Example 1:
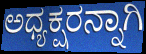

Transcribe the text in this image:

ಅಧ್ಯಕ್ಷರನ್ನಾಗಿ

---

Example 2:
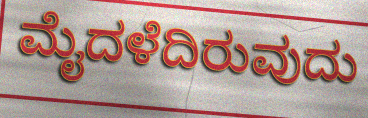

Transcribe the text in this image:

ಮೈದಳೆದಿರುವುದು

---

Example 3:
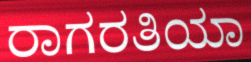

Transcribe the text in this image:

ರಾಗರತಿಯಾ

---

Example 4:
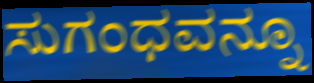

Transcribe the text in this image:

ಸುಗಂಧವನ್ನೂ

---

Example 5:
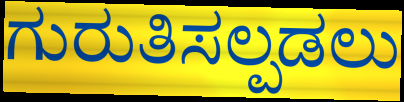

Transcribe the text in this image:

ಗುರುತಿಸಲ್ಪಡಲು